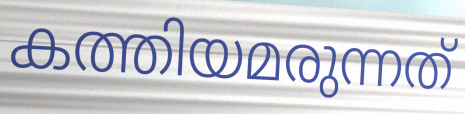
കത്തിയമരുന്നത്